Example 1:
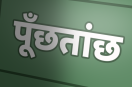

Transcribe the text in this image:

पूँछतांछ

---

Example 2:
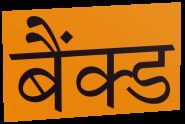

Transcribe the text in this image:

बैंक्ड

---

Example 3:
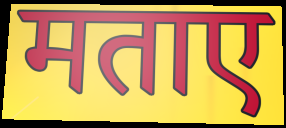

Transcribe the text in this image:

मताए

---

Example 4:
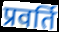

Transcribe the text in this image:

प्रवर्ति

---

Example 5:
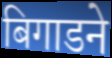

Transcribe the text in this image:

बिगाडने